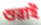
শুৱাই